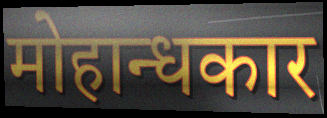
मोहान्धकार